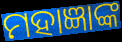
ମହାଜ୍ଞାଙ୍କ